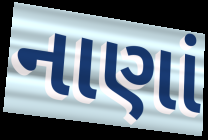
નાણાં